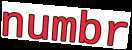
numbr